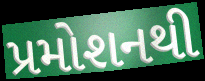
પ્રમોશનથી